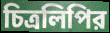
চিত্রলিপির